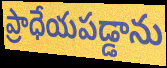
ప్రాధేయపడ్డాను